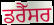
ਡਰੈੱਸਰ